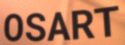
OSART